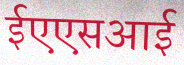
ईएएसआई